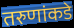
तरुणांकडे